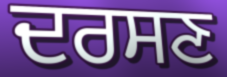
ਦਰਸਣ